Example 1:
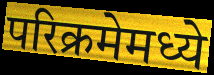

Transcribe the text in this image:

परिक्रमेमध्ये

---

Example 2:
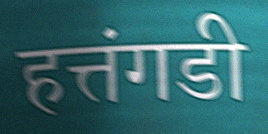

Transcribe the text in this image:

हत्तंगडी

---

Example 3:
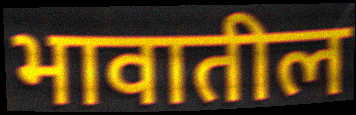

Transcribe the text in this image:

भावातील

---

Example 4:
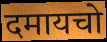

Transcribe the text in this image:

दमायचो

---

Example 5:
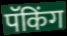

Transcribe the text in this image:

पॅकिंग